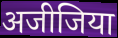
अजीजिया